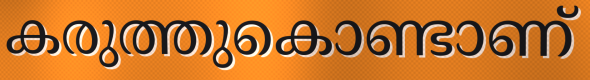
കരുത്തുകൊണ്ടാണ്